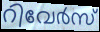
റിവേർസ്